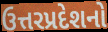
ઉત્તરપ્રદેશનો